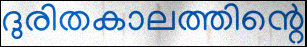
ദുരിതകാലത്തിന്റെ